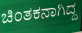
ಚಿಂತಕನಾಗಿದ್ದ